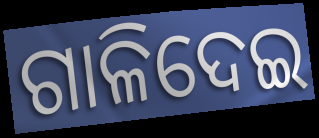
ଗାଳିଦେଇ